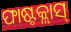
ଫାଷ୍ଟକ୍ଲାସ୍